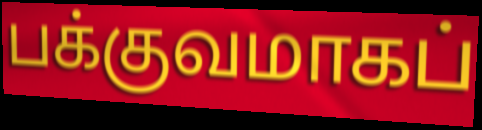
பக்குவமாகப்